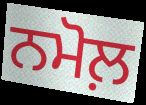
ਨਮੋਲ਼